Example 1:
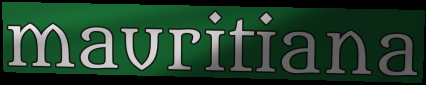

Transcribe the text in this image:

mauritiana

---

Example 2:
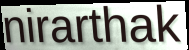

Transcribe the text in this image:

nirarthak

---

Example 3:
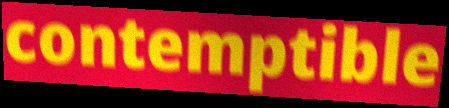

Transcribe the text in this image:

contemptible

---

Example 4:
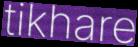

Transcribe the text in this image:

tikhare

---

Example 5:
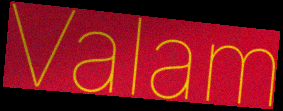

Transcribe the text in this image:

Valam